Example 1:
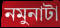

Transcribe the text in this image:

নমুনাটা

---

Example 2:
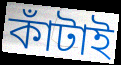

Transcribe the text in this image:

কাঁটাই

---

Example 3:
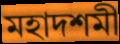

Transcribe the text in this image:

মহাদশমী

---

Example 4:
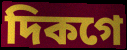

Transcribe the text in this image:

দিকগে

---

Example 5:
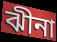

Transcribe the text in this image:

ঝীনা